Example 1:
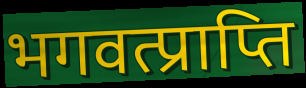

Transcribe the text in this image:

भगवत्प्राप्ति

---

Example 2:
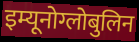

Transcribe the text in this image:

इम्यूनोग्लोबुलिन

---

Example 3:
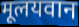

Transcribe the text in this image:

मूलयवान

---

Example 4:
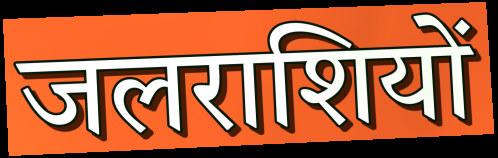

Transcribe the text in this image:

जलराशियों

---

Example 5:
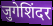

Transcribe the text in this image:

जुगेशिंदर